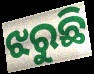
ଝରୁଛି